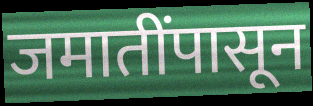
जमातींपासून